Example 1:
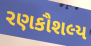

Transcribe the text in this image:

રણકૌશલ્ય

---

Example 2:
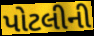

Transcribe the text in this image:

પોટલીની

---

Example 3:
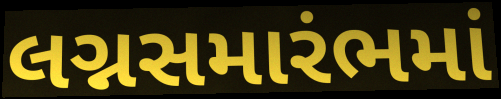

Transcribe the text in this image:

લગ્નસમારંભમાં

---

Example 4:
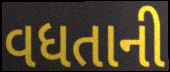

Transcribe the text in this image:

વધતાની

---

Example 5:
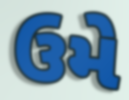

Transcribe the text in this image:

ઉમે